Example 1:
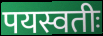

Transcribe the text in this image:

पयस्वतीः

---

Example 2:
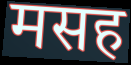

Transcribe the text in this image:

मसह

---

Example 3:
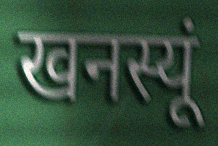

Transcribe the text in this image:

खनस्यूं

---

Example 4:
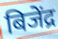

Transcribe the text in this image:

बिजेंद्र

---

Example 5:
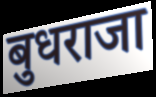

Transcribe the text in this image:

बुधराजा